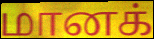
மானக்